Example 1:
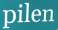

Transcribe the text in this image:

pilen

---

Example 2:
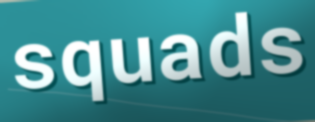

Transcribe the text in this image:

squads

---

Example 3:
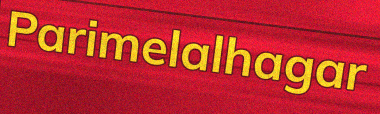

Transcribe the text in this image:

Parimelalhagar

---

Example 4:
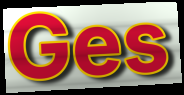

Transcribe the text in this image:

Ges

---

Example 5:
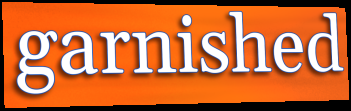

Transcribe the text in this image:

garnished